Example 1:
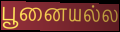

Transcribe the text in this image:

பூனையல்ல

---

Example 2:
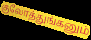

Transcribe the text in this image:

குலோத்துங்கனும்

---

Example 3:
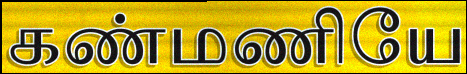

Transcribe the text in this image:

கண்மணியே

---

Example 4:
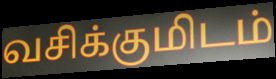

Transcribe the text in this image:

வசிக்குமிடம்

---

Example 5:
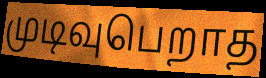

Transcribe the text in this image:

முடிவுபெறாத